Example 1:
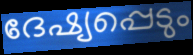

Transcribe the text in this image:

ദേഷ്യപ്പെടും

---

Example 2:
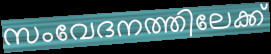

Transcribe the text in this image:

സംവേദനത്തിലേക്ക്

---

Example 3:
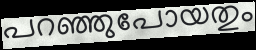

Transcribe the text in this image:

പറഞ്ഞുപോയതും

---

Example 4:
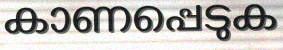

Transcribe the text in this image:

കാണപ്പെടുക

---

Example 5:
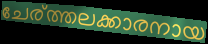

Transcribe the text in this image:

ചേര്ത്തലക്കാരനായ